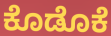
ಕೊಡೊಕೆ